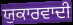
ਯੁਕਾਰਵਾਦੀ